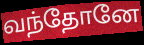
வந்தோனே